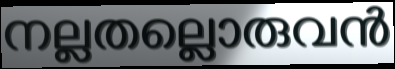
നല്ലതല്ലൊരുവൻ